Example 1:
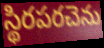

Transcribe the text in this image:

స్థిరపరచెను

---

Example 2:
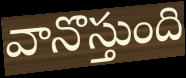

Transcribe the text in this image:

వానొస్తుంది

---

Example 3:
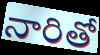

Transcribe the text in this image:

నారితో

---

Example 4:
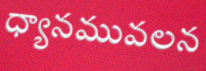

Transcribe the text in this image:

ధ్యానమువలన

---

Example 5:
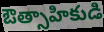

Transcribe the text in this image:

ఔత్సాహికుడి